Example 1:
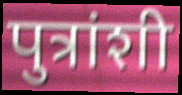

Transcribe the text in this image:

पुत्रांशी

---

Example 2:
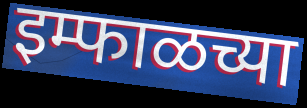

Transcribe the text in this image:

इम्फाळच्या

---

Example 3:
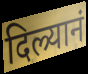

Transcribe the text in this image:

दिल्यानं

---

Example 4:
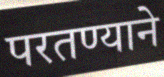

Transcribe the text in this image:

परतण्याने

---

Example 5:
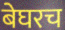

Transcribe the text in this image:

बेघरच